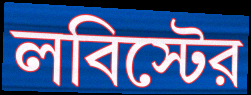
লবিস্টের